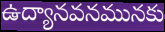
ఉద్యానవనమునకు